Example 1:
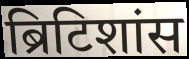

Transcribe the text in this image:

ब्रिटिशांस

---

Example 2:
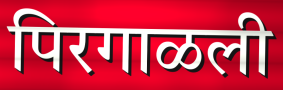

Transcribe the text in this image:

पिरगाळली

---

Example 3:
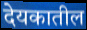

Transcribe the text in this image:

देयकातील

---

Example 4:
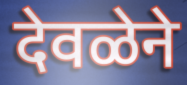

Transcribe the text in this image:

देवळेने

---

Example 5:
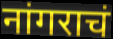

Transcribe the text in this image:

नांगराचं